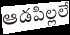
ఆడపిల్లలే